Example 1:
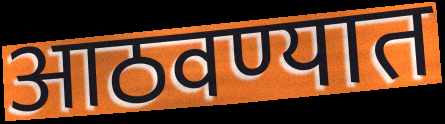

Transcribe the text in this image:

आठवण्यात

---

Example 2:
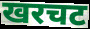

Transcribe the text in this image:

खरचट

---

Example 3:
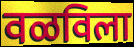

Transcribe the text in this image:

वळविला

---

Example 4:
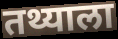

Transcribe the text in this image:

तथ्याला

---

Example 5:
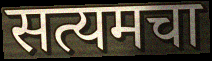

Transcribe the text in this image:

सत्यमचा